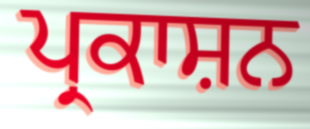
ਪ੍ਰਕਾਸ਼ਨ